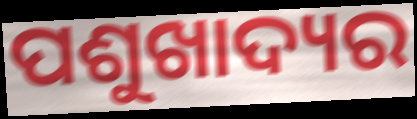
ପଶୁଖାଦ୍ୟର